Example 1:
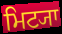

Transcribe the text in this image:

ਮਿਟ੍ਯਾ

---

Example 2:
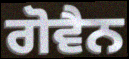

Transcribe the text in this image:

ਗੋਵੈਨ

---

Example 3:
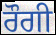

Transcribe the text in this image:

ਰੌਗੀ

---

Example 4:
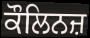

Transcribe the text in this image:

ਕੌਲਿਨਜ਼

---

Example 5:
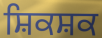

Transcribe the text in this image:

ਸ਼ਿਕਸ਼ਕ